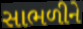
સાભળીને